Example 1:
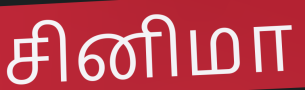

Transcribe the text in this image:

சினிமா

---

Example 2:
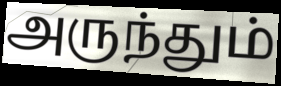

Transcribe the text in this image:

அருந்தும்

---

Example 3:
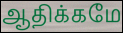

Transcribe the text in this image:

ஆதிக்கமே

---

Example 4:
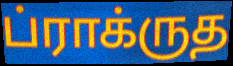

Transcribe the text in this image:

ப்ராக்ருத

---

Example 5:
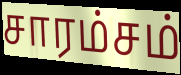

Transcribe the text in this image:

சாரம்சம்